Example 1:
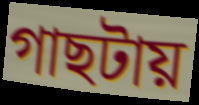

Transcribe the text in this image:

গাছটায়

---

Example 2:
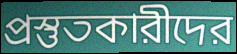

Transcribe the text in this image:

প্রস্তুতকারীদের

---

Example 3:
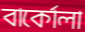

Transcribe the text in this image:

বার্কোলা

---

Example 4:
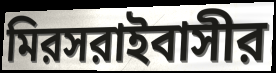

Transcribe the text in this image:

মিরসরাইবাসীর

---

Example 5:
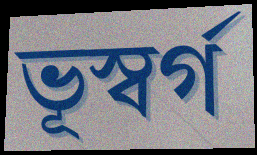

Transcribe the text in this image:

ভূস্বর্গ